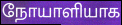
நோயாளியாக